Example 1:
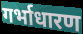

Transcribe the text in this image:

गर्भाधारण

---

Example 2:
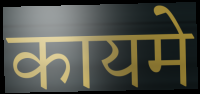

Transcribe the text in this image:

कायमे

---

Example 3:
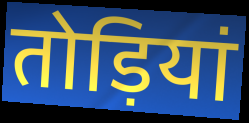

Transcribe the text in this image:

तोड़ियां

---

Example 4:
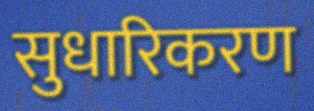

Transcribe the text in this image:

सुधारिकरण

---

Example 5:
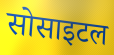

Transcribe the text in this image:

सोसाइटल